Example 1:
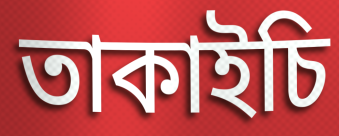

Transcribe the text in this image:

তাকাইচি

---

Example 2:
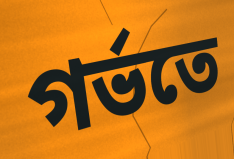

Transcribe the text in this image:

গৰ্ভতে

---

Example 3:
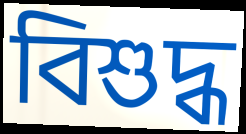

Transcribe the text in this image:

বিশুদ্ধ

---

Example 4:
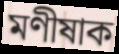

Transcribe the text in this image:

মণীষাক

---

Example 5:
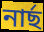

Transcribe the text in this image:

নাৰ্ছ